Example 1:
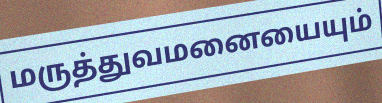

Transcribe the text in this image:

மருத்துவமனையையும்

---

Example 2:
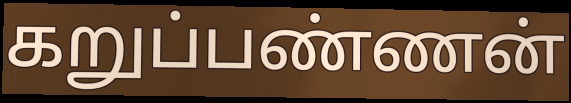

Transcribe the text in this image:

கறுப்பண்ணன்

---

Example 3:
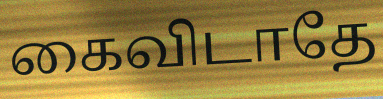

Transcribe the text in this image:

கைவிடாதே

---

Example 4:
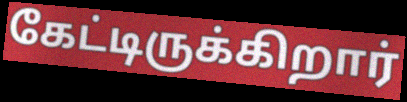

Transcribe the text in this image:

கேட்டிருக்கிறார்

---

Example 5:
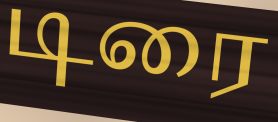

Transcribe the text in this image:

டிரை